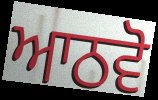
ਆਠਵੋ